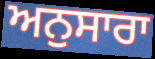
ਅਨੁਸਾਰਾ